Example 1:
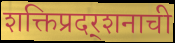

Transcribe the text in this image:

शक्तिप्रदर्शनाची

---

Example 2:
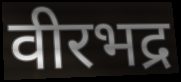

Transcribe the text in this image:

वीरभद्र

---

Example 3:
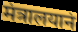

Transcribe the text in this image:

मंत्रालयानं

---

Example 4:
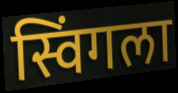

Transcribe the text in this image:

स्विंगला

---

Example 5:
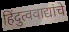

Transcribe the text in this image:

हिंदुत्ववाद्यांचे